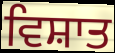
ਵਿਸ਼ਾਤ